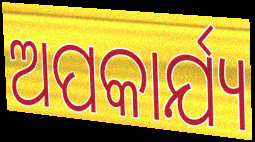
ଅପକାର୍ଯ୍ୟ